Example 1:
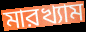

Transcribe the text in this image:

মারখ্যাম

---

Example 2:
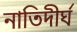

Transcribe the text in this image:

নাতিদীর্ঘ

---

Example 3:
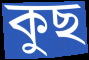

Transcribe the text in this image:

কুছ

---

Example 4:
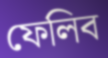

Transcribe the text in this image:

ফেলিব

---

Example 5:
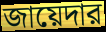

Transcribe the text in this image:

জায়েদার